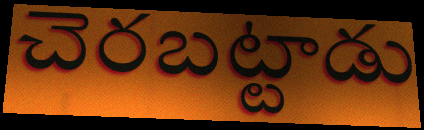
చెరబట్టాడు